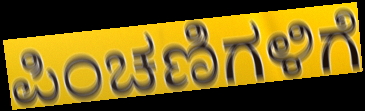
ಪಿಂಚಣಿಗಳಿಗೆ